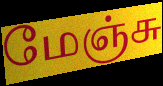
மேஞ்சு